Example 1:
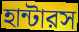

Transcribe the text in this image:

হান্টারস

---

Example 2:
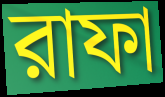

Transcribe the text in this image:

রাফা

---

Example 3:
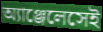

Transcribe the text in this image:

অ্যাঞ্জেলেসেই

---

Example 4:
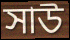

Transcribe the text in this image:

সাউ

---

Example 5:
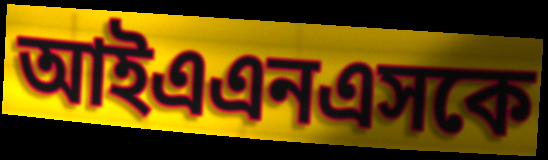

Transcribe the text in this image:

আইএএনএসকে